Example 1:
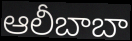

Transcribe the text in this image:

ఆలీబాబా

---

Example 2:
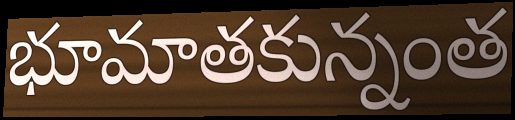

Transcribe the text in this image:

భూమాతకున్నంత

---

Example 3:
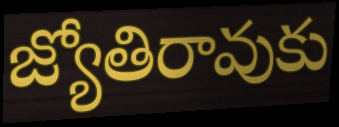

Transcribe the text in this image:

జ్యోతిరావుకు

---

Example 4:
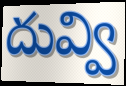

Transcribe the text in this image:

దువ్వి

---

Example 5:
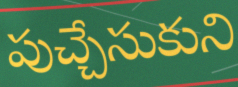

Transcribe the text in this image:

పుచ్చేసుకుని